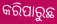
କରିପାରୁଛ